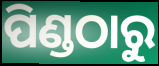
ପିଣ୍ଡଠାରୁ